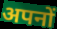
अपनों